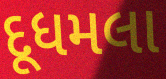
દૂધમલા